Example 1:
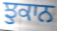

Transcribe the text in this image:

ਝੁਕਾਨ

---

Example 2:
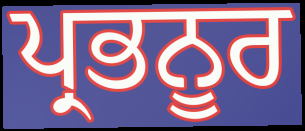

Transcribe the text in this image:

ਪ੍ਰਭਨੂਰ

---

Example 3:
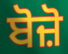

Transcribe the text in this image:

ਬੋਜ਼ੋ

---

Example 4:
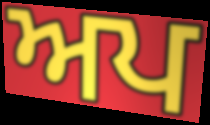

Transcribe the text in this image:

ਅਪ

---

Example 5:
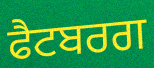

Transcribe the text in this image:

ਫੈਟਬਰਗ